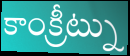
కాంక్రీట్ను